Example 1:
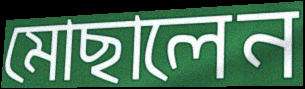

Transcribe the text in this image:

মোছালেন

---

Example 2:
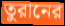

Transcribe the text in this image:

তুরানের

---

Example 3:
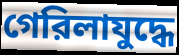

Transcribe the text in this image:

গেরিলাযুদ্ধে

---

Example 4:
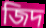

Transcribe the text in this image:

জিদ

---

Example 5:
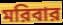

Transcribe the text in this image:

মরিবার